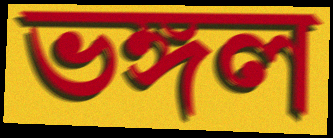
ভঙ্গল